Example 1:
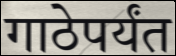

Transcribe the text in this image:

गाठेपर्यंत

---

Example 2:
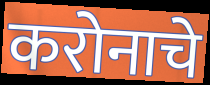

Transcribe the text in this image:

करोनाचे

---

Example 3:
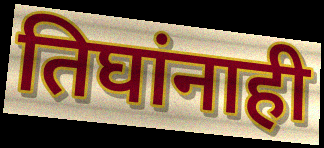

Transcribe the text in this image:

तिघांनाही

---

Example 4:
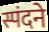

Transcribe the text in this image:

स्पंदने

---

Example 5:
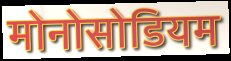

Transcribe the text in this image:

मोनोसोडियम